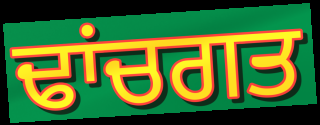
ਢਾਂਚਗਤ